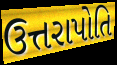
ઉત્તરાપોતિ